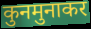
कुनमुनाकर